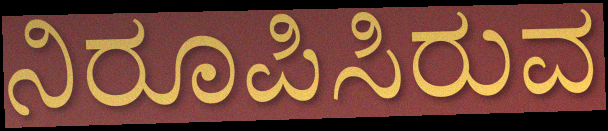
ನಿರೂಪಿಸಿರುವ